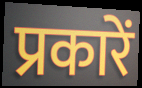
प्रकारें